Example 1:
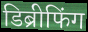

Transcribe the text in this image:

डिब्रीफिंग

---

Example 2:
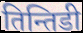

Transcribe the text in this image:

तिन्तिडी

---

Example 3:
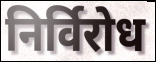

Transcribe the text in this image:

निर्विरोध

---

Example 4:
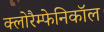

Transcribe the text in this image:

क्लोरैम्फेनिकॉल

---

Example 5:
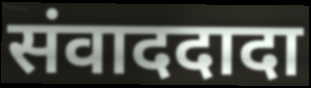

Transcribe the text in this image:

संवाददादा